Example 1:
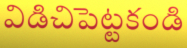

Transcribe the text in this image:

విడిచిపెట్టకండి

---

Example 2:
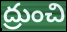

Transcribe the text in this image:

ద్రుంచి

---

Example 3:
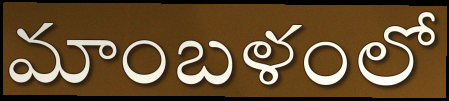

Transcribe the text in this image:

మాంబళంలో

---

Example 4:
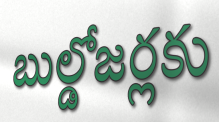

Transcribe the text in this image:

బుల్డోజర్లకు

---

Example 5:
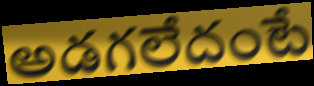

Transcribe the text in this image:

అడగలేదంటే